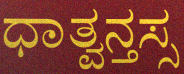
ಧಾತ್ವನ್ತಸ್ಸ